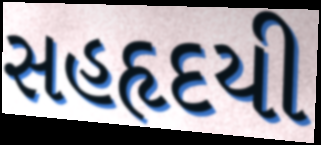
સહહૃદયી